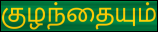
குழந்தையும்